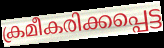
ക്രമീകരിക്കപ്പെട്ട